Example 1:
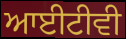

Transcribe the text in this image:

ਆਈਟੀਵੀ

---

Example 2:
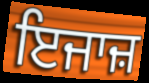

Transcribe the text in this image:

ਇਜਾਜ਼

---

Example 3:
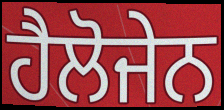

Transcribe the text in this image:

ਹੈਲੋਜੇਨ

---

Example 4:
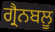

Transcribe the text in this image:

ਗ੍ਰੈਨਬਲੂ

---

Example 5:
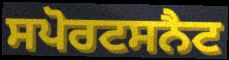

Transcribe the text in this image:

ਸਪੋਰਟਸਨੈਟ